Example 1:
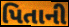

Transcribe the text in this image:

પિતાની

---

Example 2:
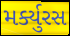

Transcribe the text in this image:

મર્ક્યુરસ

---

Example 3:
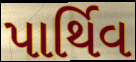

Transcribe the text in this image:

પાર્થિવ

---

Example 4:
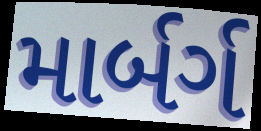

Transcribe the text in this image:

માર્બર્ગ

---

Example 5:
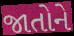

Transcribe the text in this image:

જાતોને